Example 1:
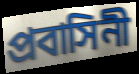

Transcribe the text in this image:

প্রবাসিনী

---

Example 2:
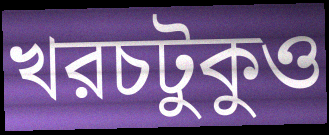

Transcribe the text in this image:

খরচটুকুও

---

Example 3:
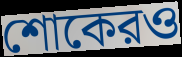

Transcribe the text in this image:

শোকেরও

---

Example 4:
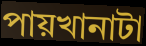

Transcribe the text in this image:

পায়খানাটা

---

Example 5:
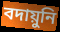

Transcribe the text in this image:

বদায়ুনি